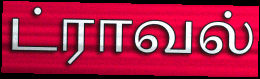
ட்ராவல்